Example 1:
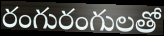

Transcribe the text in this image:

రంగురంగులతో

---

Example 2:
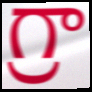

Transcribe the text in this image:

గ్రా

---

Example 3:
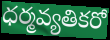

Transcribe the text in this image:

ధర్మవ్యతికరో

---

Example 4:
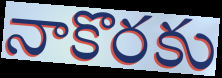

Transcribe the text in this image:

నాకొరకు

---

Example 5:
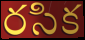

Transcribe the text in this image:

రసిక